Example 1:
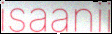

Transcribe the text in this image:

isaanii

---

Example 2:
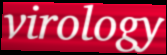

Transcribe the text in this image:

virology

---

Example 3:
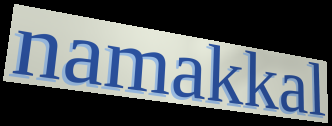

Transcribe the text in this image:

namakkal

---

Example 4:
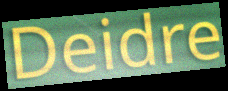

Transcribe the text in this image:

Deidre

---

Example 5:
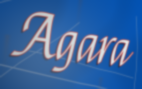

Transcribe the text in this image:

Agara